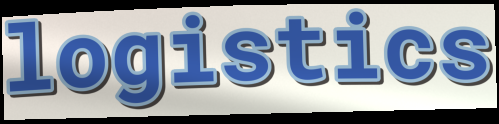
logistics